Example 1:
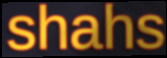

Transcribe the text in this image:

shahs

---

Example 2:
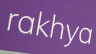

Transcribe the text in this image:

rakhya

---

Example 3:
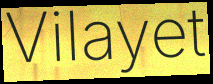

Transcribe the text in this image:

Vilayet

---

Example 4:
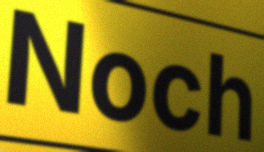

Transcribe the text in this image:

Noch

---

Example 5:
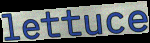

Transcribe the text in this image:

lettuce